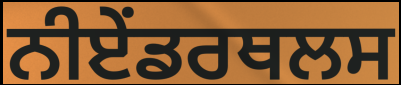
ਨੀਏਂਡਰਥਲਸ